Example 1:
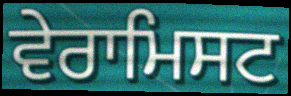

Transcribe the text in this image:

ਵੇਰਾਮਿਸਟ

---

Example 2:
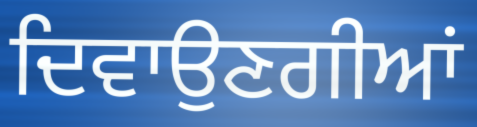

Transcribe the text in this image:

ਦਿਵਾਉਣਗੀਆਂ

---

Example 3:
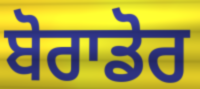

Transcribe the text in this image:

ਬੋਰਾਡੋਰ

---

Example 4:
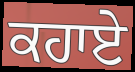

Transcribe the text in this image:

ਕਹਾਏ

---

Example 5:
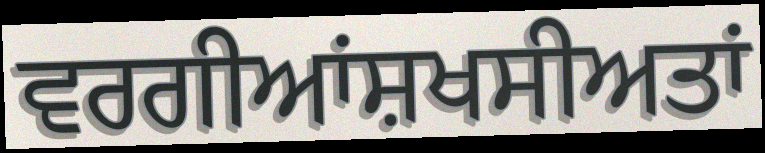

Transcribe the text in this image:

ਵਰਗੀਆਂਸ਼ਖਸੀਅਤਾਂ